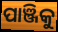
ପାଞ୍ଜିକୁ